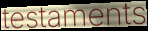
testaments